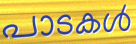
പാടകൾ